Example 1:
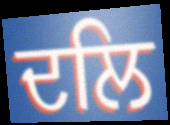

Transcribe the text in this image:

ਦਲਿ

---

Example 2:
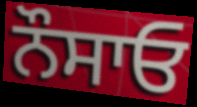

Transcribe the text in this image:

ਨੌਸਾਓ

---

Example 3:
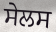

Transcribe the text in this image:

ਸੇਲਸ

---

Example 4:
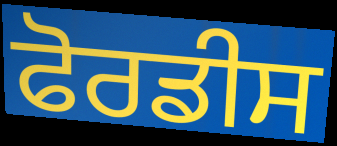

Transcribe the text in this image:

ਫੋਰਡੀਸ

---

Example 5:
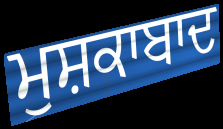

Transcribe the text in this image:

ਮੁਸ਼ਕਾਬਾਦ